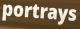
portrays